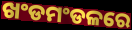
ଖଂଡମଂଡଳରେ